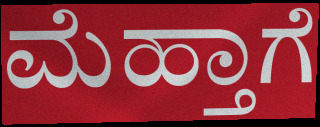
ಮೆಹ್ತಾಗೆ